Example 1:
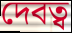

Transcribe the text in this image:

দেবত্ব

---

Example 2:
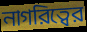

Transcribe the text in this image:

নাগরিত্বের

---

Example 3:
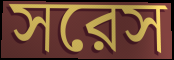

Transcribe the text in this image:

সরেস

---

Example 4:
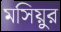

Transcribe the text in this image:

মসিয়ুর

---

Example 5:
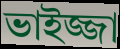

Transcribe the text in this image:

ভাইজ্জা